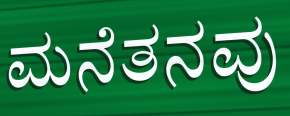
ಮನೆತನವು